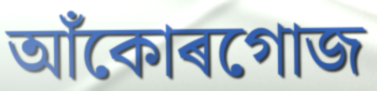
আঁকোৰগোজ